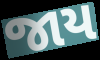
જાય